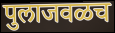
पुलाजवळच